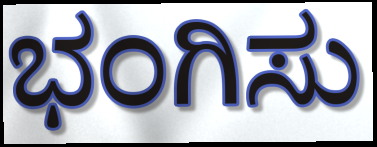
ಭಂಗಿಸು